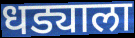
धड्याला